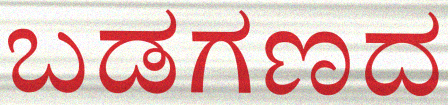
ಬಡಗಣದ